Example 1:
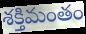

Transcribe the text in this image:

శక్తిమంతం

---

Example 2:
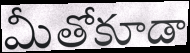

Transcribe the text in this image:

మీతోకూడా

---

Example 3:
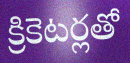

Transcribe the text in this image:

క్రికెటర్లతో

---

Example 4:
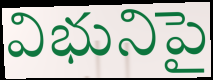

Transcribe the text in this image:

విభునిపై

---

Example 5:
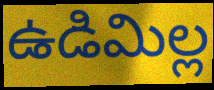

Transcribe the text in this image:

ఉడిమిల్ల